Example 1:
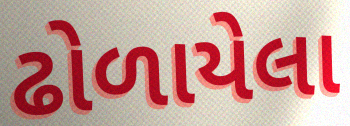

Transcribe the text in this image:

ઢોળાયેલા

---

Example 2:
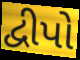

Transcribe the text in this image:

દ્વીપો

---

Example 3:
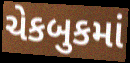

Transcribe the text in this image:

ચેકબુકમાં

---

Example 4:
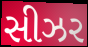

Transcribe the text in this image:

સીઝર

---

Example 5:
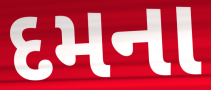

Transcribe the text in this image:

દમના